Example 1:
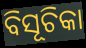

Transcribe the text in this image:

ବିସୂଚିକା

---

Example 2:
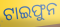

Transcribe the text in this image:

ଟାଇଫୁନ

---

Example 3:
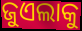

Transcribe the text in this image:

ଜୁଏଲାକୁ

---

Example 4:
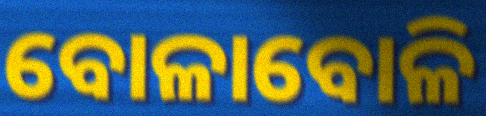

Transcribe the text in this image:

ବୋଳାବୋଳି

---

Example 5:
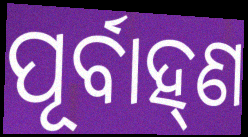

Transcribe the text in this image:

ପୂର୍ବାହ୍‌ଣ